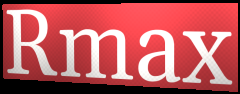
Rmax